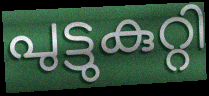
പുട്ടുകുറ്റി